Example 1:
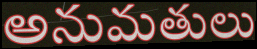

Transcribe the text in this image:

అనుమతులు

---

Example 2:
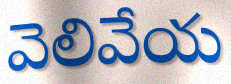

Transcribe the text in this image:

వెలివేయ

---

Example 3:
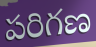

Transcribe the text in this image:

పరిగణ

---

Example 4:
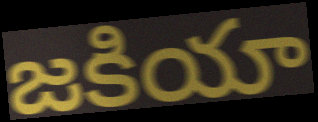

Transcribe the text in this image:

జకియా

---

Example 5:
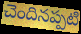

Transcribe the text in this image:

చెందినప్పటి